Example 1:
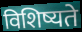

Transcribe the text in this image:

विशिष्यते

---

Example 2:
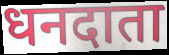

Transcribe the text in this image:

धनदाता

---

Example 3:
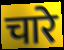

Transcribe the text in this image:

चारे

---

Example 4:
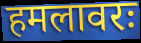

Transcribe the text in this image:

हमलावरः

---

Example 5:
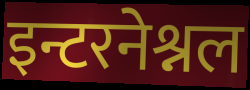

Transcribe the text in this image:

इन्टरनेश्नल